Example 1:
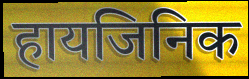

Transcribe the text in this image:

हायजिनिक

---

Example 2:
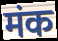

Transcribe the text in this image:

मंक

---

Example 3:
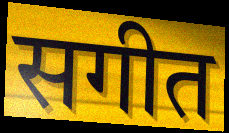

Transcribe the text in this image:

सगीत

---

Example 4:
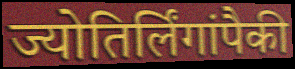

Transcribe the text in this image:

ज्योतिर्लिंगांपैकी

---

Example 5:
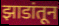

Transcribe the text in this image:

झाडांतून